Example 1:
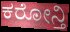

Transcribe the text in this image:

ಕರೋನ್ತಿ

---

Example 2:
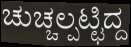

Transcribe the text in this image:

ಚುಚ್ಚಲ್ಪಟ್ಟಿದ್ದ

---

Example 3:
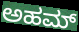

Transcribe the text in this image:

ಅಹಮ್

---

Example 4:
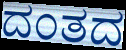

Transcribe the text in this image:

ದಂತದ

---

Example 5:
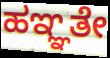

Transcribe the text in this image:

ಹಞ್ಞತೇ